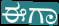
ಈಗಾ